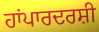
ਹਾਂਪਾਰਦਰਸ਼ੀ